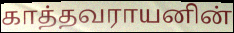
காத்தவராயனின்